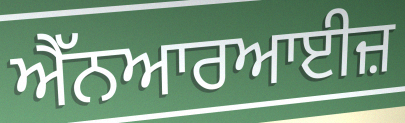
ਐੱਨਆਰਆਈਜ਼